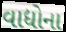
વાદ્યોના